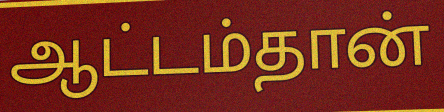
ஆட்டம்தான்